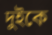
দুইকে